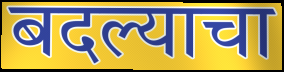
बदल्याचा